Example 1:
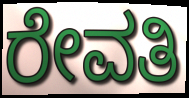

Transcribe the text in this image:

ರೇವತಿ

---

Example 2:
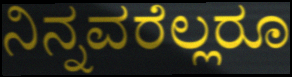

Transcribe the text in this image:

ನಿನ್ನವರೆಲ್ಲರೂ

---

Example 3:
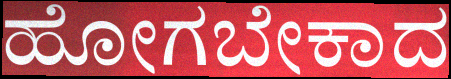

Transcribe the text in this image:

ಹೋಗಬೇಕಾದ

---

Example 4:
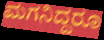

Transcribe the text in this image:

ಮಗನಿದ್ದರೂ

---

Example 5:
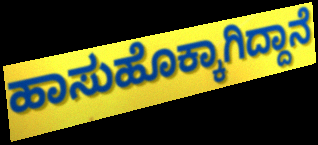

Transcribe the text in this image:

ಹಾಸುಹೊಕ್ಕಾಗಿದ್ದಾನೆ